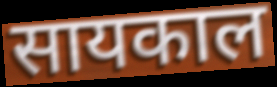
सायकाल